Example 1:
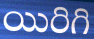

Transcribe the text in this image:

యిరిగి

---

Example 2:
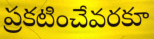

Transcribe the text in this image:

ప్రకటించేవరకూ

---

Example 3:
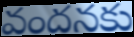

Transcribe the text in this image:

వందనకు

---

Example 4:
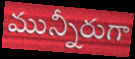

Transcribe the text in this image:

మున్నీరుగా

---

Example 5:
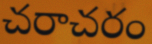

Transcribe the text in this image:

చరాచరం